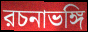
রচনাভঙ্গি